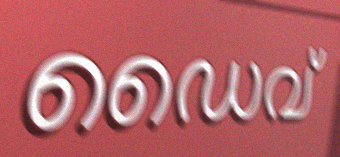
ഡൈവ്